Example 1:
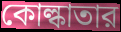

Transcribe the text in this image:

কোল্কাতার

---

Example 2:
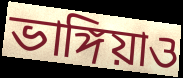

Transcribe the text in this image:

ভাঙ্গিয়াও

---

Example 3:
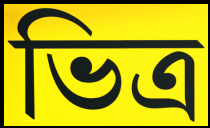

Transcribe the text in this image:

ভিত্র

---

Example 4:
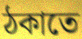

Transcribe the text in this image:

ঠকাতে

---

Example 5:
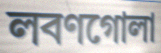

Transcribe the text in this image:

লবণগোলা